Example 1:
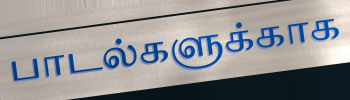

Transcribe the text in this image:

பாடல்களுக்காக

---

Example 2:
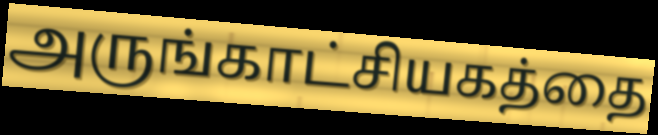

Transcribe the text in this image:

அருங்காட்சியகத்தை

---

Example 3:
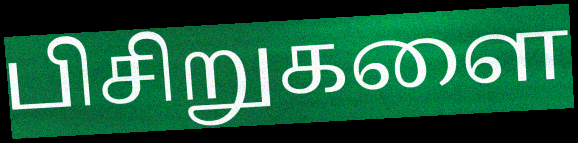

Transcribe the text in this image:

பிசிறுகளை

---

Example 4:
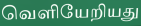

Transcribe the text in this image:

வெளியேறியது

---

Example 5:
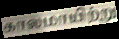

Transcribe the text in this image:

காலமாயிற்று